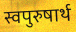
स्वपुरुषार्थ